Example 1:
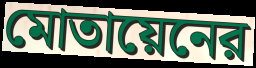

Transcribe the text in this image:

মোতায়েনের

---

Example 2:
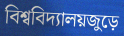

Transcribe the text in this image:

বিশ্ববিদ্যালয়জুড়ে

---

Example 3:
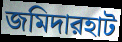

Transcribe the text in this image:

জমিদারহাট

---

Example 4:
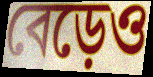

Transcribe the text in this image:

বেড়েও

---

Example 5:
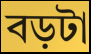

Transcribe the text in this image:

বড়টা